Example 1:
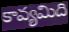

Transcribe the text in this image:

కావ్యమిది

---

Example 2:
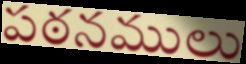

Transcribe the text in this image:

పఠనములు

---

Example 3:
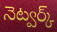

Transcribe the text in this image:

నెట్వర్క్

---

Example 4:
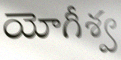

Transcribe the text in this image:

యోగీశ్వ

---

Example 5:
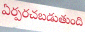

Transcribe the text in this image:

ఏర్పరచబడుతుంది